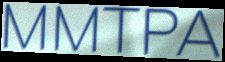
MMTPA